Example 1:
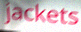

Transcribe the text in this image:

jackets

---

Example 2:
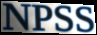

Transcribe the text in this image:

NPSS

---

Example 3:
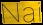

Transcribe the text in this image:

Nai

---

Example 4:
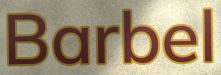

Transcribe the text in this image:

Barbel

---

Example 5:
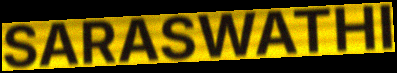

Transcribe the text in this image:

SARASWATHI